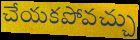
చేయకపోవచ్చు